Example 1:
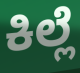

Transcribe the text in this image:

ಕಿಲ್ಲೆ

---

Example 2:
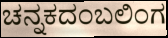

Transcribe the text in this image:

ಚನ್ನಕದಂಬಲಿಂಗ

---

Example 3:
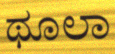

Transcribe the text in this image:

ಥೂಲಾ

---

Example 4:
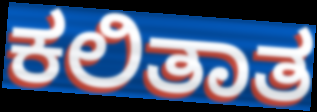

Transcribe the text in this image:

ಕಲಿತಾತ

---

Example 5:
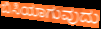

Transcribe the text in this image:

ಬಿಸಿಯಾಗುವುದು